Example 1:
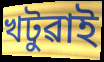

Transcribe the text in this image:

খটুৱাই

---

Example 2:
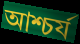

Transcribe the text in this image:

আশ্চৰ্য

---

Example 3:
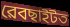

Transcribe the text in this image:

ৱেবছাইটত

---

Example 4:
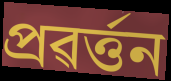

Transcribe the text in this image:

প্ৰৱৰ্ত্তন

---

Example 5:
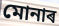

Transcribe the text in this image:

মোনাৰ